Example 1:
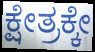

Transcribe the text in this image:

ಕ್ಷೇತ್ರಕ್ಕೇ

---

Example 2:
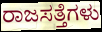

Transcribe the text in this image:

ರಾಜಸತ್ತೆಗಳು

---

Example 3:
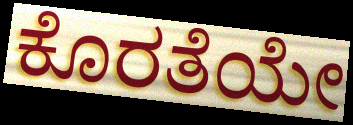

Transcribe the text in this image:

ಕೊರತೆಯೇ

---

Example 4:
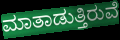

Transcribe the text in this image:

ಮಾತಾಡುತ್ತಿರುವೆ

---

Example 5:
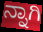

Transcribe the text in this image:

ನ್ನಾಗಿ